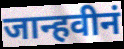
जान्हवीनं